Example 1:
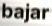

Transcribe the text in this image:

bajar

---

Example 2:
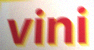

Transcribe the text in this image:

vini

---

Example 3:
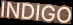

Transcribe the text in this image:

INDIGO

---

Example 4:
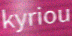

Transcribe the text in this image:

kyriou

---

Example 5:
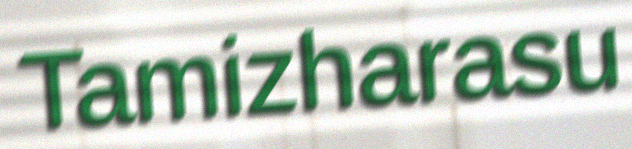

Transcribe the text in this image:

Tamizharasu